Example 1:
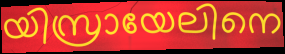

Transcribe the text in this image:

യിസ്രായേലിനെ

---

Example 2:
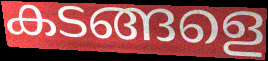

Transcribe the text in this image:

കടങ്ങളെ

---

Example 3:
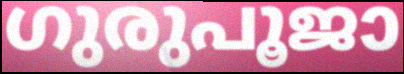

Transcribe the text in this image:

ഗുരുപൂജാ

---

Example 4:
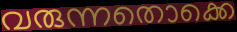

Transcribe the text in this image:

വരുന്നതൊക്കെ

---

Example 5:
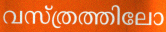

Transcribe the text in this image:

വസ്ത്രത്തിലോ